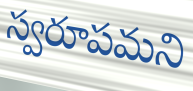
స్వరూపమని